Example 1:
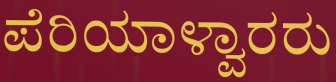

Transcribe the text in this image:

ಪೆರಿಯಾಳ್ವಾರರು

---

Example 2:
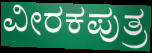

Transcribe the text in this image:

ವೀರಕಪುತ್ರ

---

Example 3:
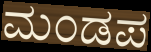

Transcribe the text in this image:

ಮಂಡಪ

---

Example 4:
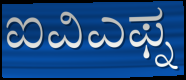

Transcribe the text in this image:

ಐವಿಎಫ್ನ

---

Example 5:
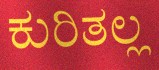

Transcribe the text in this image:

ಕುರಿತಲ್ಲ